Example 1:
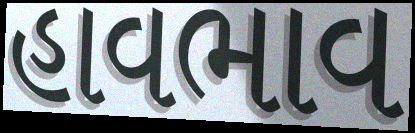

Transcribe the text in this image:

હાવભાવ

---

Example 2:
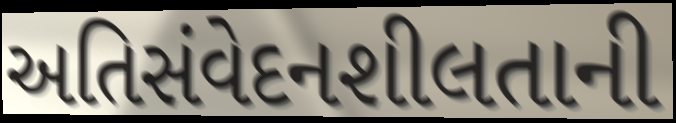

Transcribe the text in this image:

અતિસંવેદનશીલતાની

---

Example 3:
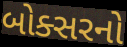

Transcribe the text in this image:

બોક્સરનો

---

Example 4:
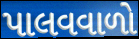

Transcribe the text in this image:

પાલવવાળો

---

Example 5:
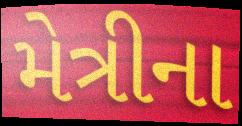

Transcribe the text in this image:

મેત્રીના